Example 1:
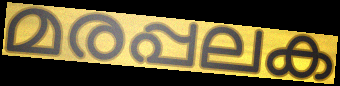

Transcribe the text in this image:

മരപ്പലക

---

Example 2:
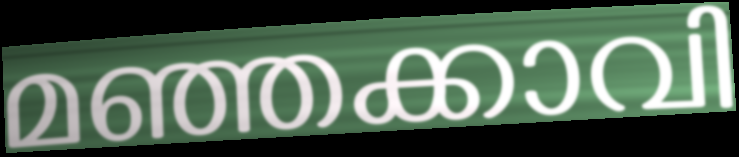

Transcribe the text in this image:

മഞ്ഞക്കാവി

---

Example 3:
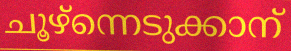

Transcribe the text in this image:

ചൂഴ്ന്നെടുക്കാന്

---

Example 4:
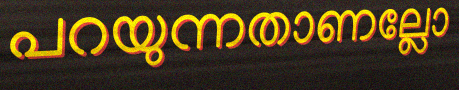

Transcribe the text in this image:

പറയുന്നതാണല്ലോ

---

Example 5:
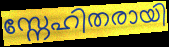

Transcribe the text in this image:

സ്നേഹിതരായി